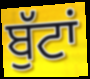
ਬੁੱਟਾਂ